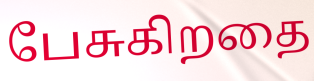
பேசுகிறதை